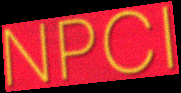
NPCI